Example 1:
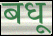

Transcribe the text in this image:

बधू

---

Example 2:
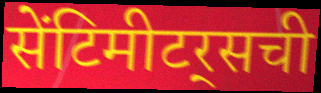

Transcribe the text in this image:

सेंटिमीटर्सची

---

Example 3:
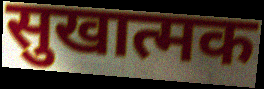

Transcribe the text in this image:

सुखात्मक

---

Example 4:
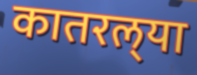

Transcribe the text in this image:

कातरल्या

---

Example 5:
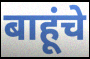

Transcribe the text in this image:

बाहूंचे